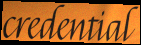
credential